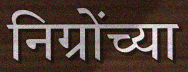
निग्रोंच्या